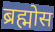
ब्रह्मोस